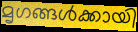
മൃഗങ്ങൾക്കായി